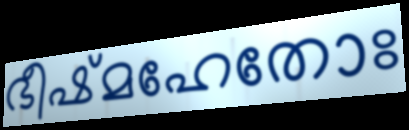
ഭീഷ്മഹേതോഃ